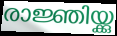
രാജ്ഞിയ്ക്കു